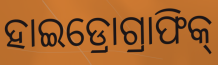
ହାଇଡ୍ରୋଗ୍ରାଫିକ୍